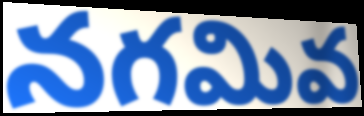
నగమివ